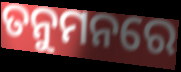
ତନୁମନରେ